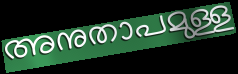
അനുതാപമുള്ള